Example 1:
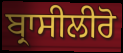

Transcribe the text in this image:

ਬ੍ਰਾਸੀਲੀਰੋ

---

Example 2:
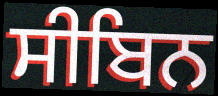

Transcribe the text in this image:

ਸੀਬਿਨ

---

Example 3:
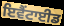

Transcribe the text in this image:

ਇਵੈਂਟਾਈਡ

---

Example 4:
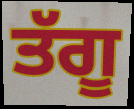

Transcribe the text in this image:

ਤੱਗੂ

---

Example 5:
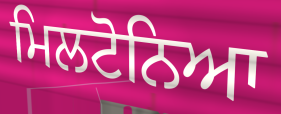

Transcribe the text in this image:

ਮਿਲਟੋਨਿਆ